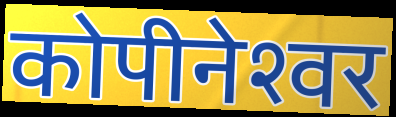
कोपीनेश्वर